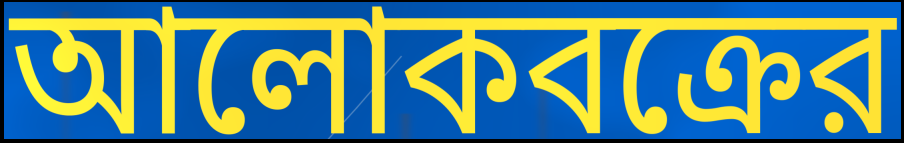
আলোকবক্রের